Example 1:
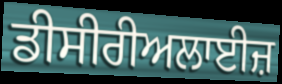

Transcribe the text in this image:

ਡੀਸੀਰੀਅਲਾਈਜ਼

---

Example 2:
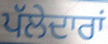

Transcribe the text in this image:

ਪੱਲੇਦਾਰਾਂ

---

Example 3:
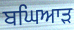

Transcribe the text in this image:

ਬਘਿਆੜ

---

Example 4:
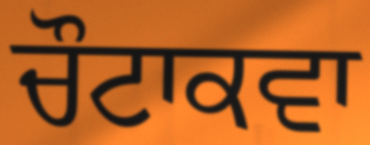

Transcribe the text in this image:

ਚੌਟਾਕਵਾ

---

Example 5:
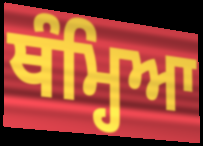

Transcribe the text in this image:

ਥੰਮ੍ਹਿਆ